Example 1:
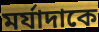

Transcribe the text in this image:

মর্যাদাকে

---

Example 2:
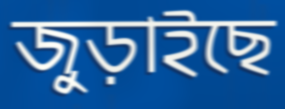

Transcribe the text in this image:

জুড়াইছে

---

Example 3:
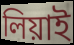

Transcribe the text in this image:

লিয়াই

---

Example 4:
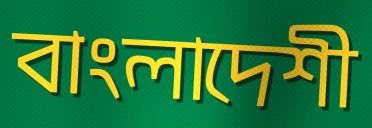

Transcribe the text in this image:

বাংলাদেশী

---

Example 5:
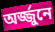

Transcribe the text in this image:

অর্জ্জুনে